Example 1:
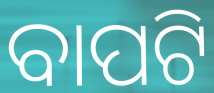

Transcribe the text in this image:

ବାପଟି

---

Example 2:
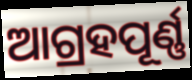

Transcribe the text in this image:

ଆଗ୍ରହପୂର୍ଣ୍ଣ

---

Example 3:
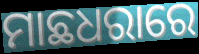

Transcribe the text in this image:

ମାଛଧରାରେ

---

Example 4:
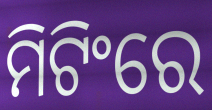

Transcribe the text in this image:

ମିଟିଂରେ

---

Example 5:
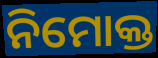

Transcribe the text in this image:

ନିମୋକ୍ତ